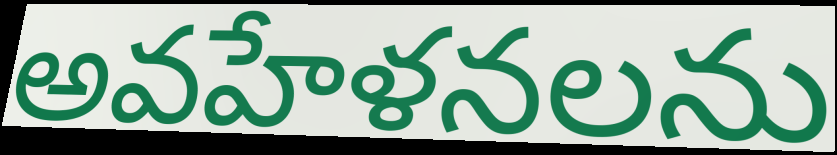
అవహేళనలను